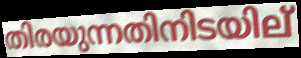
തിരയുന്നതിനിടയില്